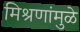
मिश्रणांमुळे